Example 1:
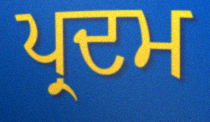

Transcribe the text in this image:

ਪ੍ਰਦਮ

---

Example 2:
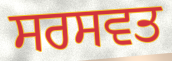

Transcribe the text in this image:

ਸਰਸਵਤ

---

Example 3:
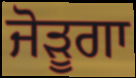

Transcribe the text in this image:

ਜੋੜੂਗਾ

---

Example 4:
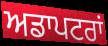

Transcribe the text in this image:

ਅਡਾਪਟਰਾਂ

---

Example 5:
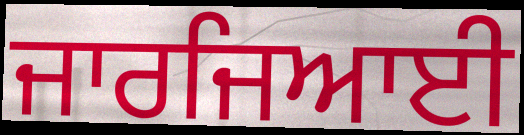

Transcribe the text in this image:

ਜਾਰਜਿਆਈ